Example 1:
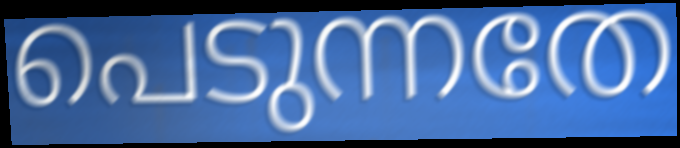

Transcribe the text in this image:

പെടുന്നതേ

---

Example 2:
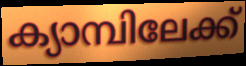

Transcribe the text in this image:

ക്യാമ്പിലേക്ക്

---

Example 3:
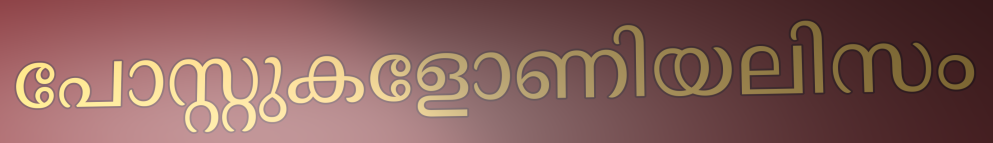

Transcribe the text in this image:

പോസ്റ്റുകളോണിയലിസം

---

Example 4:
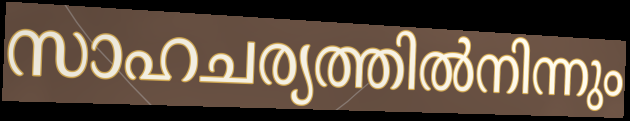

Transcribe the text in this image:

സാഹചര്യത്തിൽനിന്നും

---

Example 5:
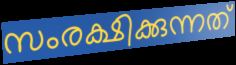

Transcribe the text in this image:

സംരക്ഷിക്കുന്നത്